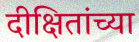
दीक्षितांच्या